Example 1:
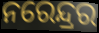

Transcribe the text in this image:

ନରେନ୍ଦ୍ରର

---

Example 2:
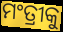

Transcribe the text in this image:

ମଂତ୍ରୀକୁ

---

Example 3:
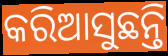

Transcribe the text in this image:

କରିଆସୁଛନ୍ତି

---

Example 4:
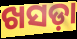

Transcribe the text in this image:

ଖସଡ଼ା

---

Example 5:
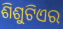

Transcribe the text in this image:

ଶିଶୁଟିଏର